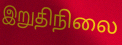
இறுதிநிலை